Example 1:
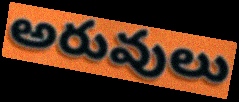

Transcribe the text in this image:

అరువులు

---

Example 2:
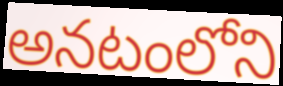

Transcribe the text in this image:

అనటంలోని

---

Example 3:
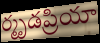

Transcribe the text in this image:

ర్మృడప్రియా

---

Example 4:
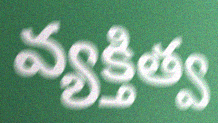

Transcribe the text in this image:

వ్యక్తిత్వ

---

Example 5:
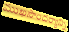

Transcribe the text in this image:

ముఖసౌందర్యాన్ని